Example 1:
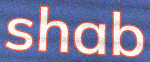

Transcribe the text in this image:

shab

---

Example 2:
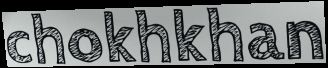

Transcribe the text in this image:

chokhkhan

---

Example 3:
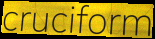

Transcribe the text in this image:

cruciform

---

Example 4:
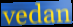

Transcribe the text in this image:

vedan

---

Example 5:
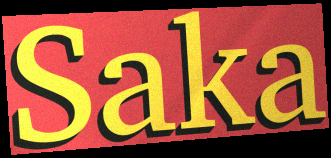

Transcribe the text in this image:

Saka